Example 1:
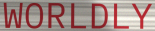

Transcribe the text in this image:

WORLDLY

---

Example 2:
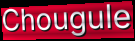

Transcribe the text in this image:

Chougule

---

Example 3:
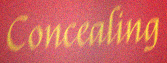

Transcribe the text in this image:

Concealing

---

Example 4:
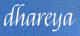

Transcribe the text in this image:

dhareya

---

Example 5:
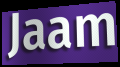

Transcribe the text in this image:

Jaam